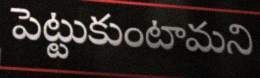
పెట్టుకుంటామని